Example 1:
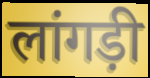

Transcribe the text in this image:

लांगड़ी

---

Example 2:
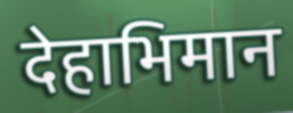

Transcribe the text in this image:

देहाभिमान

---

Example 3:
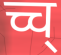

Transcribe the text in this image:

च्च्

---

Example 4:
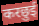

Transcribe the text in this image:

करछुई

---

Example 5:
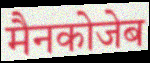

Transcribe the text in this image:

मैनकोजेब